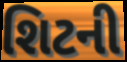
શિટની